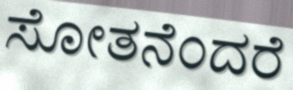
ಸೋತನೆಂದರೆ